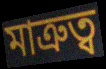
মাত্রুত্ব